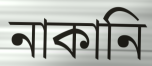
নাকানি